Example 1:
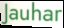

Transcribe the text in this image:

Jauhar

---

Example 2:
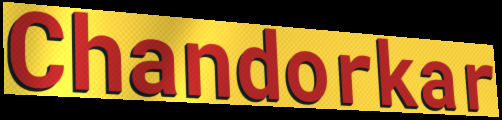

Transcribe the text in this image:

Chandorkar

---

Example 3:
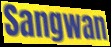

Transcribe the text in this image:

Sangwan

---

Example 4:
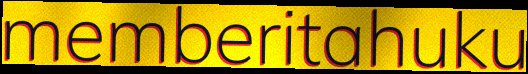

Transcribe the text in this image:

memberitahuku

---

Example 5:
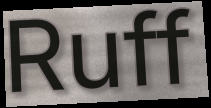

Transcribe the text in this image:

Ruff